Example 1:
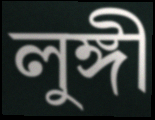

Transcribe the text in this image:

লুঙ্গী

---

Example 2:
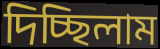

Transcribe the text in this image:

দিচ্ছিলাম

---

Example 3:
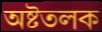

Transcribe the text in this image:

অষ্টতলক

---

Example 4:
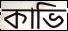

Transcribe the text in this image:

কাভি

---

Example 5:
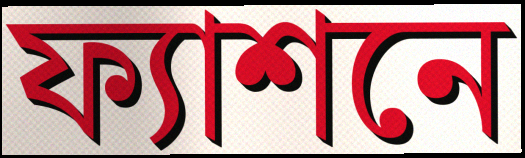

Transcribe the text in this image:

ফ্যাশনে